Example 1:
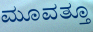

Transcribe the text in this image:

ಮೂವತ್ತೂ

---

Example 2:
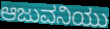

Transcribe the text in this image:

ಆಜುವನಿಯು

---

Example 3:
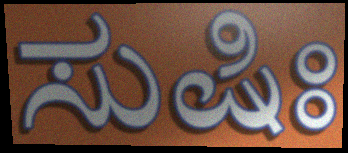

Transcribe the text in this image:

ಸುಷಿಃ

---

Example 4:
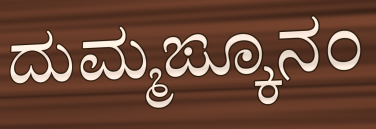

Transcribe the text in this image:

ದುಮ್ಮಙ್ಕೂನಂ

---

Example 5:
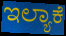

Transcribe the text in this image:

ಇಲ್ಯಾಕೆ